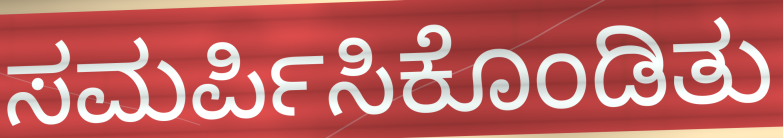
ಸಮರ್ಪಿಸಿಕೊಂಡಿತು